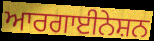
ਆਰਗਾਈਨੇਸ਼ਨ